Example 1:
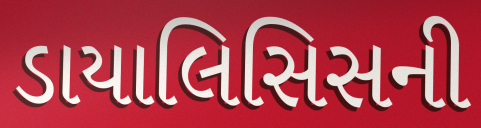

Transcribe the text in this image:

ડાયાલિસિસની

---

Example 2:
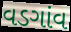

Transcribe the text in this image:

વડગાંવ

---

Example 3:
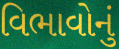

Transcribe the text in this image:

વિભાવોનું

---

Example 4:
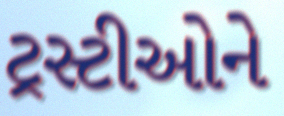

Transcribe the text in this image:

ટ્રસ્ટીઓને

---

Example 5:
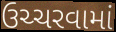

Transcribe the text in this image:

ઉચ્ચરવામાં